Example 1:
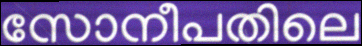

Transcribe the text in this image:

സോനീപതിലെ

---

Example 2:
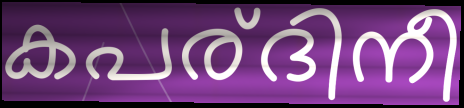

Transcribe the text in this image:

കപര്ദിനീ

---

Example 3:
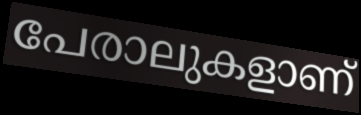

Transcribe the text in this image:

പേരാലുകളാണ്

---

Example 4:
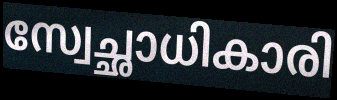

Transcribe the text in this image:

സ്വേച്ഛാധികാരി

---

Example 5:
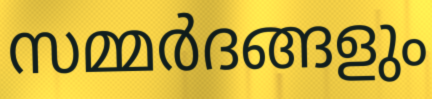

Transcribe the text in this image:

സമ്മർദങ്ങളും